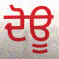
ਦੋਊ